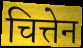
चित्तेन